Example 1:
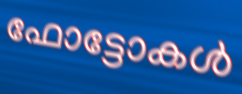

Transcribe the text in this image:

ഫോട്ടോകൾ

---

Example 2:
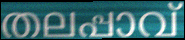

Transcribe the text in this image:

തലപ്പാവ്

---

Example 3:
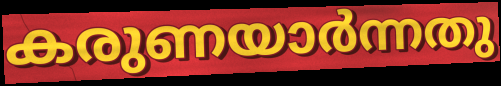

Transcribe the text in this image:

കരുണയാർന്നതു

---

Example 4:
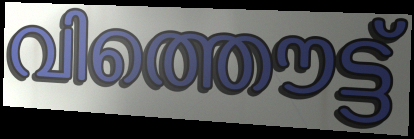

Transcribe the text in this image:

വിത്തൌട്ട്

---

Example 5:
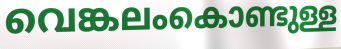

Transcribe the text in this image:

വെങ്കലംകൊണ്ടുള്ള